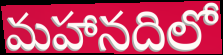
మహానదిలో